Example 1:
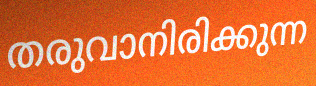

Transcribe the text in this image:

തരുവാനിരിക്കുന്ന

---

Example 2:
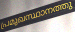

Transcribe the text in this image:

പ്രമുഖസ്ഥാനത്തു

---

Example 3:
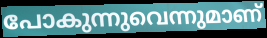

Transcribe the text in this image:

പോകുന്നുവെന്നുമാണ്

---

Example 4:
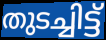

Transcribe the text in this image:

തുടച്ചിട്ട്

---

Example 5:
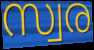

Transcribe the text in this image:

സ്വര